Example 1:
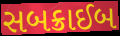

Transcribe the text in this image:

સબક્રાઈબ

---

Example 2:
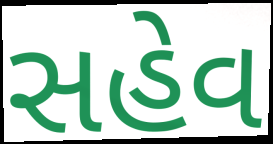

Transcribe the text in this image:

સહેવ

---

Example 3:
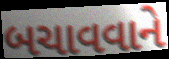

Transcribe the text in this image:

બચાવવાને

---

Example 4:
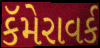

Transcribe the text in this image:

કૅમેરાવર્ક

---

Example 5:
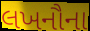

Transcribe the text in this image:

લખનૌના